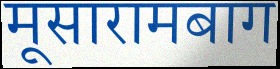
मूसारामबाग